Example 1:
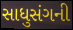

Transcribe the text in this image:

સાધુસંગની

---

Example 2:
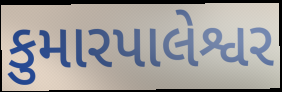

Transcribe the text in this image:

કુમારપાલેશ્વર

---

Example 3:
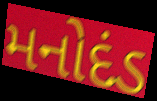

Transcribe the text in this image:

મનોદંડ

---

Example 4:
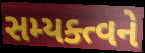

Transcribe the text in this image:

સમ્યક્ત્વને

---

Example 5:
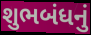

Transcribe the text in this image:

શુભબંધનું